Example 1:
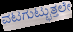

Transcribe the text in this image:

ವಟಗುಟ್ಟುತ್ತಲೇ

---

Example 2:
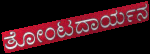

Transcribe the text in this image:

ತೋಂಟದಾರ್ಯನ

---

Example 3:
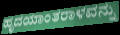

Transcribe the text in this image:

ಹೃದಯಾಂತರಾಳವನ್ನು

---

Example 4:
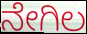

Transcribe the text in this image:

ನೇಗಿಲ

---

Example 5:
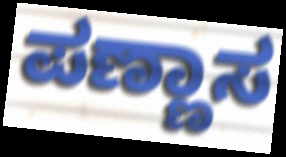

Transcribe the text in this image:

ಪಣ್ಣಾಸ